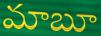
మాబూ